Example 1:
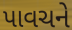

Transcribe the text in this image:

પાવચને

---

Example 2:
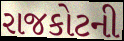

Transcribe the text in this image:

રાજકોટની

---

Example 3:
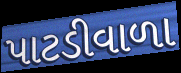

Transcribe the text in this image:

પાટડીવાળા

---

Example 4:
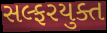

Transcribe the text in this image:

સલ્ફરયુક્ત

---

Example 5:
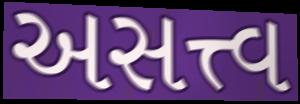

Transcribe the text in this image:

અસત્ત્વ